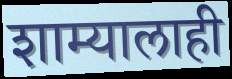
शाम्यालाही